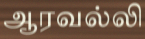
ஆரவல்லி